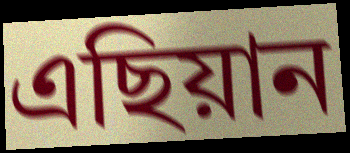
এছিয়ান